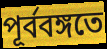
পূর্ববঙ্গতে